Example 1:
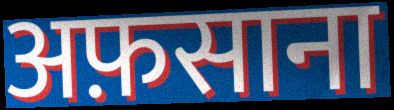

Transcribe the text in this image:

अफ़साना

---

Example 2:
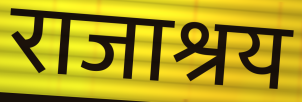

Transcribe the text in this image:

राजाश्रय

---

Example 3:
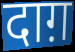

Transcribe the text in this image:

दाग़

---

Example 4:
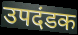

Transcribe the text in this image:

उपदंडक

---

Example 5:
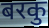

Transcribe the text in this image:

बरकु